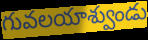
గువలయాశ్వుండు